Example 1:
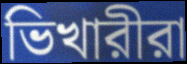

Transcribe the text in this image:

ভিখারীরা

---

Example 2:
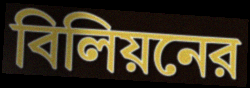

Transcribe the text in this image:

বিলিয়নের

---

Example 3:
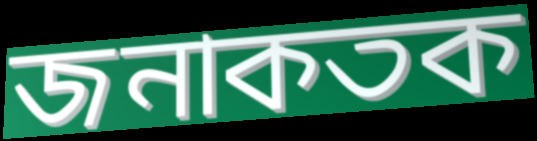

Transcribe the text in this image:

জনাকতক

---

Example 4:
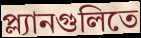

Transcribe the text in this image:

প্ল্যানগুলিতে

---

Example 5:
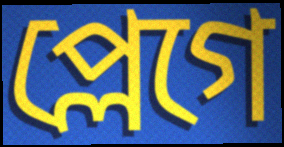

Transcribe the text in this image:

প্লেগে